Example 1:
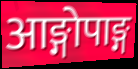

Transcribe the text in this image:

आङ्गोपाङ्ग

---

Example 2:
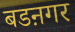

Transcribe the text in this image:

बडऩगर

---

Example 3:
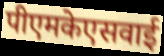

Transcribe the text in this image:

पीएमकेएसवाई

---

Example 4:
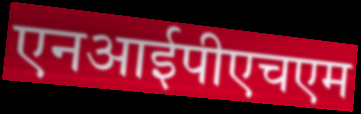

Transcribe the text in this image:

एनआईपीएचएम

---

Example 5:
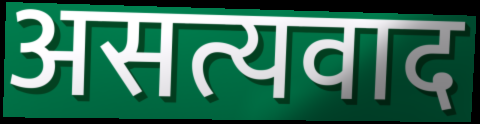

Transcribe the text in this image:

असत्यवाद